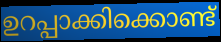
ഉറപ്പാക്കിക്കൊണ്ട്